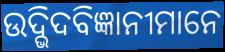
ଉଦ୍ଭିଦବିଜ୍ଞାନୀମାନେ